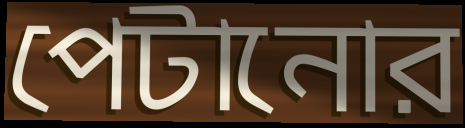
পেটানোর